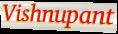
Vishnupant